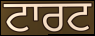
ਟਾਰਟ